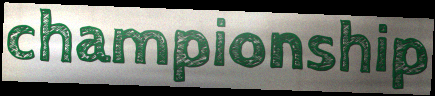
championship